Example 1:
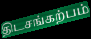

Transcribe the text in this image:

திடசங்கற்பம்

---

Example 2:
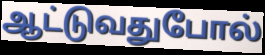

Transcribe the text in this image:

ஆட்டுவதுபோல்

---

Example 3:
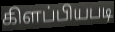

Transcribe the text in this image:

கிளப்பியபடி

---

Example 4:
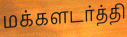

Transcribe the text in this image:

மக்களடர்த்தி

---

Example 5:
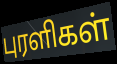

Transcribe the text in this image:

புரளிகள்